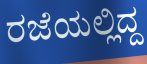
ರಜೆಯಲ್ಲಿದ್ದ